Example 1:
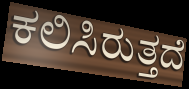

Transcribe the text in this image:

ಕಲಿಸಿರುತ್ತದೆ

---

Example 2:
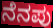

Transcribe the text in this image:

ನೆನಪು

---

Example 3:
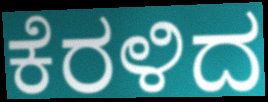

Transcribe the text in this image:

ಕೆರಳಿದ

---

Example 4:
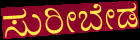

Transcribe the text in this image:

ಸುರೀಬೇಡ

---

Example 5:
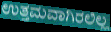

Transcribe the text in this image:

ಉತ್ತಮವಾಗಿರಲಿಲ್ಲ